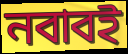
নবাবই